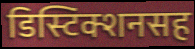
डिस्टिंक्शनसह